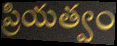
ప్రియత్వం